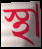
স্থা